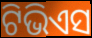
ଟିଭିଏସ